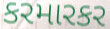
કરમારકર